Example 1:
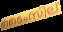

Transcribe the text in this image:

ടൈംസില്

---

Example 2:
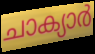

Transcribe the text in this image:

ചാക്യാർ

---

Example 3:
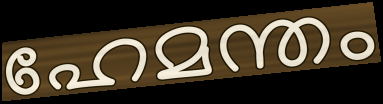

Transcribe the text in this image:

ഹേമന്തം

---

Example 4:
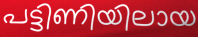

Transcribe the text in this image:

പട്ടിണിയിലായ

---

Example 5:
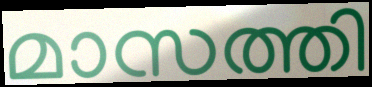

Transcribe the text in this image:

മാസത്തി